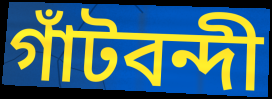
গাঁটবন্দী